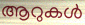
ആറുകൾ